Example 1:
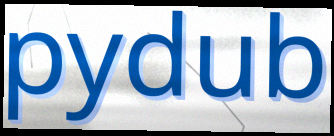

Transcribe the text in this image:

pydub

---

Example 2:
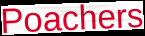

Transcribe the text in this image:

Poachers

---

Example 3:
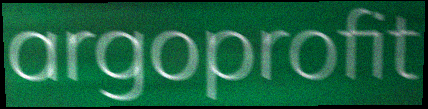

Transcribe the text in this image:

argoprofit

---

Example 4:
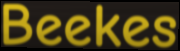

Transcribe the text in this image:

Beekes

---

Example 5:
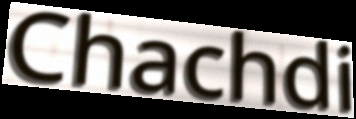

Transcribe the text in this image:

Chachdi